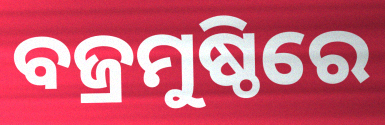
ବଜ୍ରମୁଷ୍ଠିରେ